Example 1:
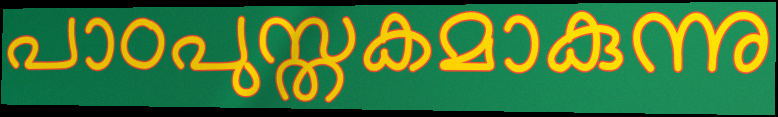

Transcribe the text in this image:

പാഠപുസ്തകമാകുന്നു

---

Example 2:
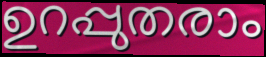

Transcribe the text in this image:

ഉറപ്പുതരാം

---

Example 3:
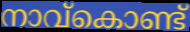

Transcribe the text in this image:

നാവ്കൊണ്ട്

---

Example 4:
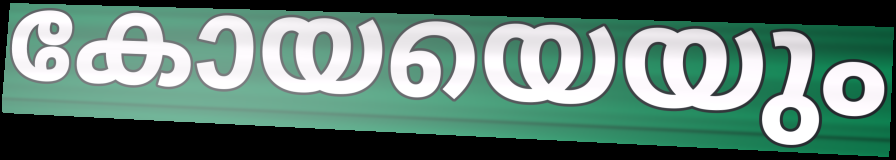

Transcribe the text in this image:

കോയയെയും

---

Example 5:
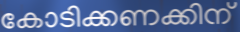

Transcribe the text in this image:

കോടിക്കണക്കിന്